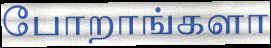
போறாங்களா